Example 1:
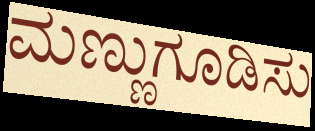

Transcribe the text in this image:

ಮಣ್ಣುಗೂಡಿಸು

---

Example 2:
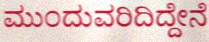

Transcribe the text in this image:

ಮುಂದುವರಿದಿದ್ದೇನೆ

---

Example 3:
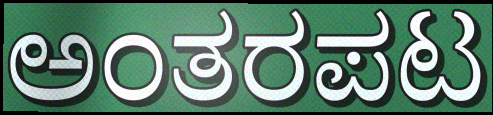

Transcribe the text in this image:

ಅಂತರಪಟ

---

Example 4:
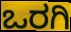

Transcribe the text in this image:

ಒರಗಿ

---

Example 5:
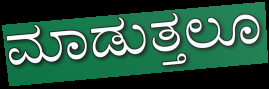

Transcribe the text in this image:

ಮಾಡುತ್ತಲೂ